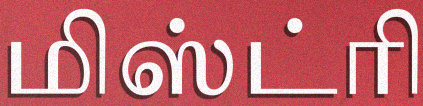
மிஸ்ட்ரி